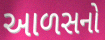
આળસનો